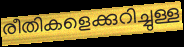
രീതികളെക്കുറിച്ചുള്ള